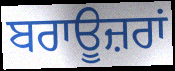
ਬਰਾਊਜ਼ਰਾਂ